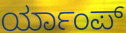
ರ್ಯಾಂಪ್